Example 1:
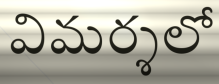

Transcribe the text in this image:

విమర్శలో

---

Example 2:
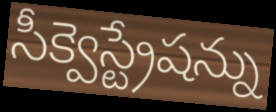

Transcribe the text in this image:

సీక్వెస్ట్రేషన్ను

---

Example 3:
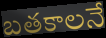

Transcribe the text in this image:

బతకాలనే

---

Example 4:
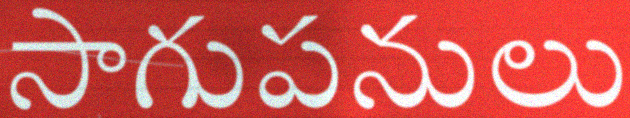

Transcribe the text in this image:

సాగుపనులు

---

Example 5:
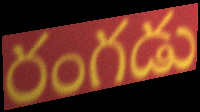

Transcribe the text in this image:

రంగడు